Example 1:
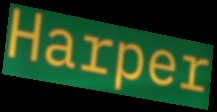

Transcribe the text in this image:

Harper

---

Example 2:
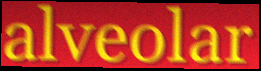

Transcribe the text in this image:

alveolar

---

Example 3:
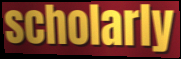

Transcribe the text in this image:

scholarly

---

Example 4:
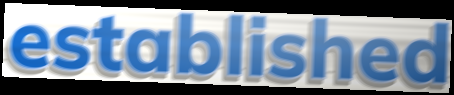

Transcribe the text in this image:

established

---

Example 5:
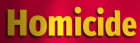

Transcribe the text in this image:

Homicide